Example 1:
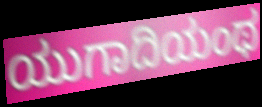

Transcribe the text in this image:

ಯುಗಾದಿಯಂಥ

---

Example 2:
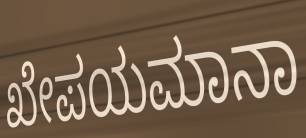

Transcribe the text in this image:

ಖೇಪಯಮಾನಾ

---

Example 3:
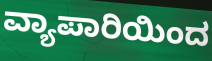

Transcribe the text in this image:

ವ್ಯಾಪಾರಿಯಿಂದ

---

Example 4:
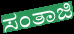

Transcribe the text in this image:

ಸಂತಾಜಿ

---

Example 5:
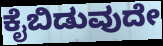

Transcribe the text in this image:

ಕೈಬಿಡುವುದೇ